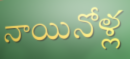
నాయినోళ్ల